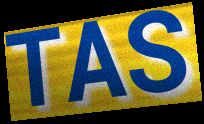
TAS